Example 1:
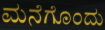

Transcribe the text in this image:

ಮನೆಗೊಂದು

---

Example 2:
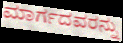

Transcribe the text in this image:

ಮಾರ್ಗದವರನ್ನು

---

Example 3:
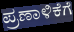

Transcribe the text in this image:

ಪ್ರಣಾಳಿಕೆಗೆ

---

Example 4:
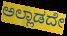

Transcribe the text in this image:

ಅಲ್ಲಾಡದೇ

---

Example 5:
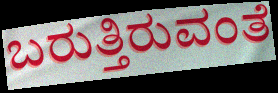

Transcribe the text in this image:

ಬರುತ್ತಿರುವಂತೆ